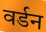
वर्डन